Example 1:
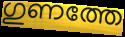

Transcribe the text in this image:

ഗുണത്തേ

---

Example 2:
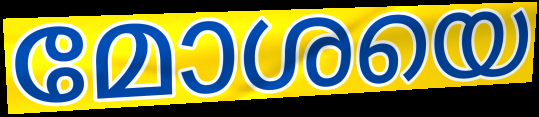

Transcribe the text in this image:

മോശയെ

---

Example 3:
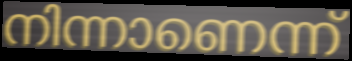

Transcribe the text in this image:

നിന്നാണെന്ന്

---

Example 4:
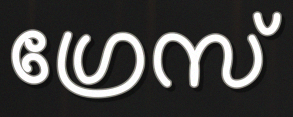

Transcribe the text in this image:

ഗ്രേസ്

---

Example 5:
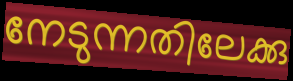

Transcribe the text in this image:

നേടുന്നതിലേക്കു